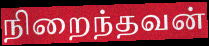
நிறைந்தவன்